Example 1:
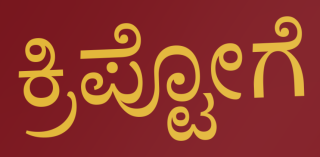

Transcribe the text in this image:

ಕ್ರಿಪ್ಟೋಗೆ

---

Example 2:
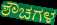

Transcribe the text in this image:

ಶೌಚಗಳ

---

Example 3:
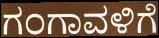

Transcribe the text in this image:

ಗಂಗಾವಳಿಗೆ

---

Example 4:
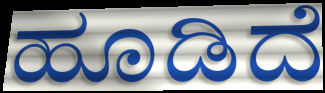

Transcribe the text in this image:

ಹೂಡಿದೆ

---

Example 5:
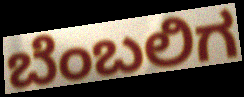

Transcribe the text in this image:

ಬೆಂಬಲಿಗ